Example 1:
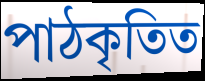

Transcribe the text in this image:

পাঠকৃতিত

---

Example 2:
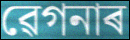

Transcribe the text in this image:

ৱেগনাৰ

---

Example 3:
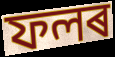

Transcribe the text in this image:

ফলৰ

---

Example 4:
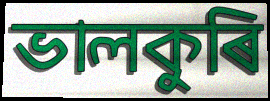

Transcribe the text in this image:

ভালকুৰি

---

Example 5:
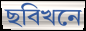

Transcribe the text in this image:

ছবিখনে